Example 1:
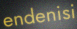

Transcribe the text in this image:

endenisi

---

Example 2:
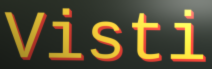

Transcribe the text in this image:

Visti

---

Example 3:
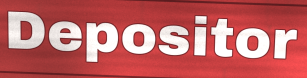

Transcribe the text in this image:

Depositor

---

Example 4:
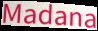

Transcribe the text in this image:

Madana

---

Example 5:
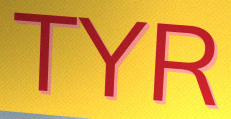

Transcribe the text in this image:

TYR